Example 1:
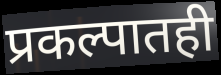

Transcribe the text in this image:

प्रकल्पातही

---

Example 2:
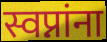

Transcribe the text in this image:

स्वप्नांना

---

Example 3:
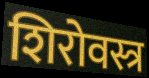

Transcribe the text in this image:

शिरोवस्त्र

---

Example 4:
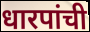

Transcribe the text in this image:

धारपांची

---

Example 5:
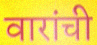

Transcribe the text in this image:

वारांची